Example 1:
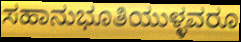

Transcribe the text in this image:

ಸಹಾನುಭೂತಿಯುಳ್ಳವರೂ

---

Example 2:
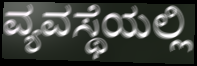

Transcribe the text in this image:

ವ್ಯವಸ್ಥೆಯಲ್ಲಿ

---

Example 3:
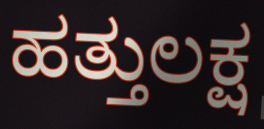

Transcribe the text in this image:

ಹತ್ತುಲಕ್ಷ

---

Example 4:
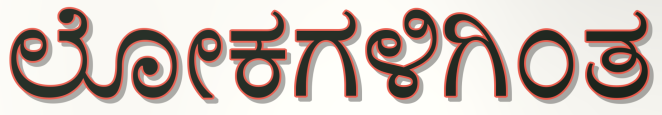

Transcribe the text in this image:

ಲೋಕಗಳಿಗಿಂತ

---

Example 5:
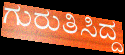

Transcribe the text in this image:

ಗುರುತಿಸಿದ್ದ